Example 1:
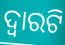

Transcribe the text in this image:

ଦ୍ୱାରଟି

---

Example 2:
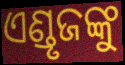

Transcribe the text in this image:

ଏଣ୍ଡୃଜଙ୍କୁ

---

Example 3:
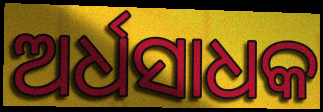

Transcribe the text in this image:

ଅର୍ଧସାଧକ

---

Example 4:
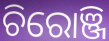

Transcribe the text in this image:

ଚିରୋଞ୍ଜି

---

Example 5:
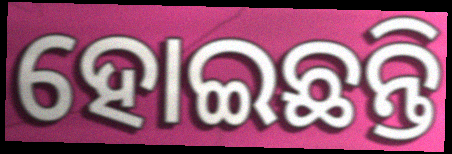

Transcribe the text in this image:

ହୋଇଛନ୍ତି